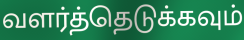
வளர்த்தெடுக்கவும்